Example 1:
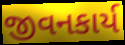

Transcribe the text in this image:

જીવનકાર્ય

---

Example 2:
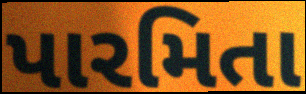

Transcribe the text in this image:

પારમિતા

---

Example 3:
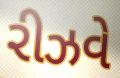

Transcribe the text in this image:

રીઝવે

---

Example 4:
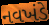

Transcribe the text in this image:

નવખંડે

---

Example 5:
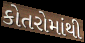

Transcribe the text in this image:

કોતરોમાંથી